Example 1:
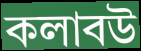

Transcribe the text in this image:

কলাবউ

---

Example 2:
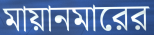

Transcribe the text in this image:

মায়ানমারের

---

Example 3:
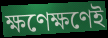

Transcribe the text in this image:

ক্ষণেক্ষণেই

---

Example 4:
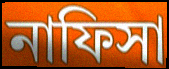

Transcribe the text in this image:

নাফিসা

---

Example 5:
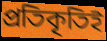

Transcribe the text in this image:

প্রতিকৃতিই